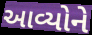
આવ્યોને